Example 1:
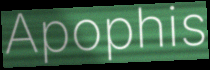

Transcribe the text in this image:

Apophis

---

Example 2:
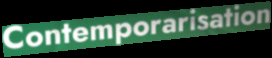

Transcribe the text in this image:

Contemporarisation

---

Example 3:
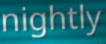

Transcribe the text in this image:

nightly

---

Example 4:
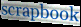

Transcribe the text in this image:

scrapbook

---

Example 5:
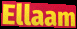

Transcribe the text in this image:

Ellaam